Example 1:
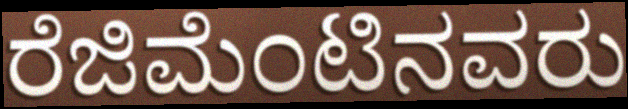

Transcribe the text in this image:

ರೆಜಿಮೆಂಟಿನವರು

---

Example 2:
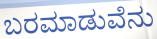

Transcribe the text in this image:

ಬರಮಾಡುವೆನು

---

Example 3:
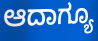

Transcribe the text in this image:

ಆದಾಗ್ಯೂ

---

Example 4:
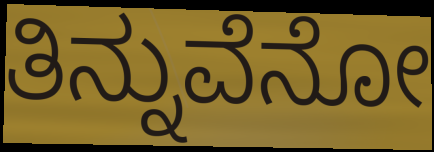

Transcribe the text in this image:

ತಿನ್ನುವೆನೋ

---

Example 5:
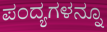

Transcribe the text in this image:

ಪಂದ್ಯಗಳನ್ನೂ